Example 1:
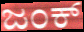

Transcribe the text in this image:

ಜಂಕ್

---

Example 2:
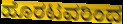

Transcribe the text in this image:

ಹೊರಟವರಿಂದ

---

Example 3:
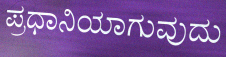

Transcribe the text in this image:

ಪ್ರಧಾನಿಯಾಗುವುದು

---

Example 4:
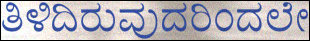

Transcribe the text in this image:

ತಿಳಿದಿರುವುದರಿಂದಲೇ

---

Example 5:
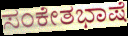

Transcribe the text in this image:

ಸಂಕೇತಭಾಷೆ